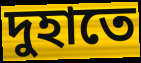
দুহাতে